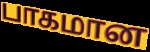
பாகமான